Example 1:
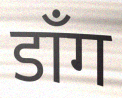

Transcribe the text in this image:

डाँग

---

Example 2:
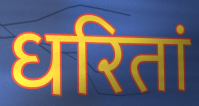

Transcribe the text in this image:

धरितां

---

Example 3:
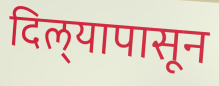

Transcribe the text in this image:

दिल्यापासून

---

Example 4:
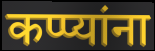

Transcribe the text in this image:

कप्प्यांना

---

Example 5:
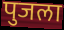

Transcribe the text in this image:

पुजला